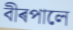
বীৰপালে